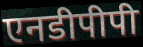
एनडीपीपी